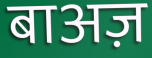
बाअज़